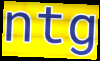
ntg